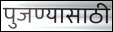
पुजण्यासाठी